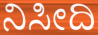
ನಿಸೀದಿ